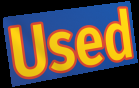
Used